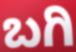
ಬಗಿ